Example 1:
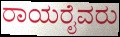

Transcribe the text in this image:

ರಾಯರೈವರು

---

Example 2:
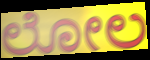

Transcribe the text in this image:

ಲೋಲ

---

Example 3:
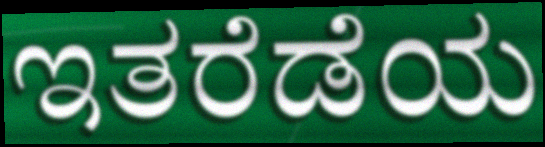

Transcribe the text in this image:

ಇತರೆಡೆಯ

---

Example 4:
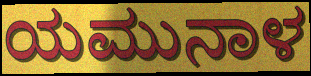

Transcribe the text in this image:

ಯಮುನಾಳ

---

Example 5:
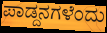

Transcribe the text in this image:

ಪಾಡ್ದನಗಳೆಂದು